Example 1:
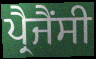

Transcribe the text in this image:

ਪ੍ਰੈਜੈਂਸੀ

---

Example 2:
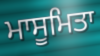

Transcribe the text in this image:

ਮਾਸੂਮਿਤਾ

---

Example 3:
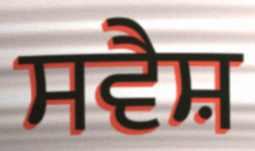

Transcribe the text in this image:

ਸਵੈਸ਼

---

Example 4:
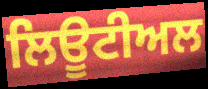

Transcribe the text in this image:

ਲਿਊਟੀਅਲ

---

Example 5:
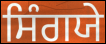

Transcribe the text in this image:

ਸਿੰਗਯੇ